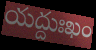
యద్దుఃఖం